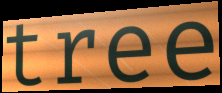
tree